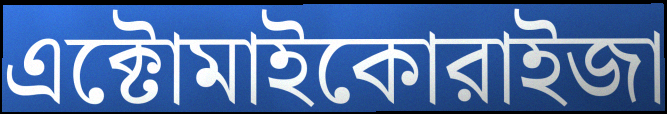
এক্টোমাইকোরাইজা